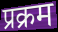
प्रक्रम